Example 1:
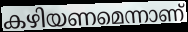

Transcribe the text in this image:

കഴിയണമെന്നാണ്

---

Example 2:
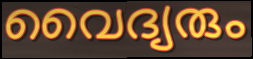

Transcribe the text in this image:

വൈദ്യരും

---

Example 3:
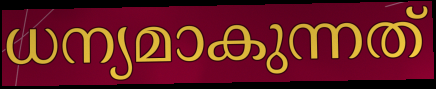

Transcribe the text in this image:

ധന്യമാകുന്നത്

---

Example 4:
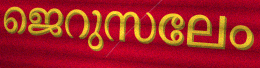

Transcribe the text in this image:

ജെറുസലേം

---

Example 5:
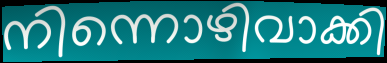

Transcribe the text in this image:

നിന്നൊഴിവാക്കി